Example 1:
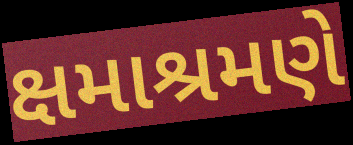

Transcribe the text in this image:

ક્ષમાશ્રમણે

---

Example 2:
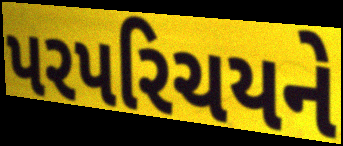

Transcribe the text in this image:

પરપરિચયને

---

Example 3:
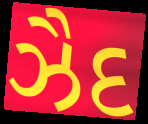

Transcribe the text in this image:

ઝૈદ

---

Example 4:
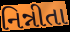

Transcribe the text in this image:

નિન્નીતા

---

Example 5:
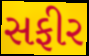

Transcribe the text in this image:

સફીર